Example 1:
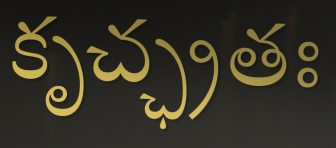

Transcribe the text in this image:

కృచ్ఛ్రతః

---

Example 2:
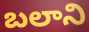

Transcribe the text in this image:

బలాని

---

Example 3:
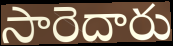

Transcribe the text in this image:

సారెదారు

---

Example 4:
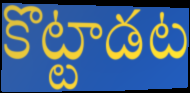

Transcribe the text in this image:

కొట్టాడట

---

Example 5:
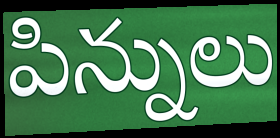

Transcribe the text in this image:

పిన్నులు